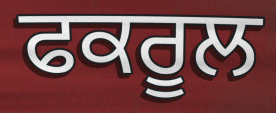
ਫਕਰੂਲ